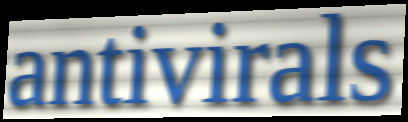
antivirals